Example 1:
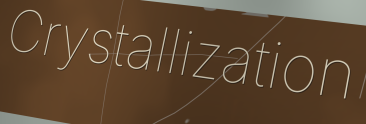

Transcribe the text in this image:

Crystallization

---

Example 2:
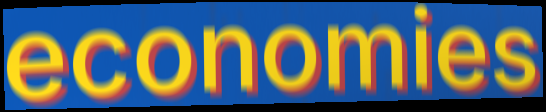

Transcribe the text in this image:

economies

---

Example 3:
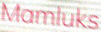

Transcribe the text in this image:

Mamluks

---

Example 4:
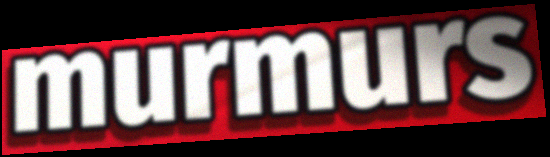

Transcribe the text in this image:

murmurs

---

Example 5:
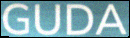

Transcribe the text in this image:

GUDA